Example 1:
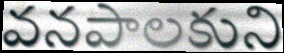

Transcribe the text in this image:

వనపాలకుని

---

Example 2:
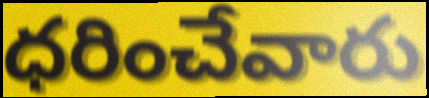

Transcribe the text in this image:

ధరించేవారు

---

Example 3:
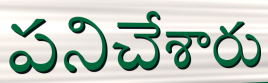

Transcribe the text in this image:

పనిచేశారు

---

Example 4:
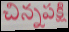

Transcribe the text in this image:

చిన్నపక్షి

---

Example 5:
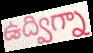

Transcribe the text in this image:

ఉద్విగ్నా